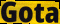
Gota